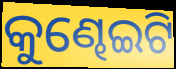
କୁଣ୍ଢେଇଟି